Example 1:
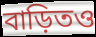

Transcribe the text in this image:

বাড়িতও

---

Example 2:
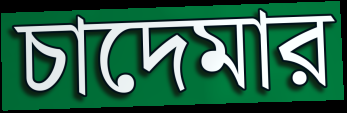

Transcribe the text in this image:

চাদেমার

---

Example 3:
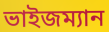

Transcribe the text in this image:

ভাইজম্যান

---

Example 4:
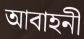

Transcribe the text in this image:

আবাহনী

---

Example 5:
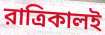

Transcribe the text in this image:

রাত্রিকালই